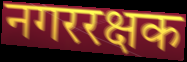
नगररक्षक